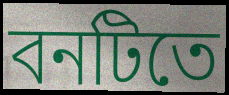
বনটিতে